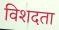
विशदता